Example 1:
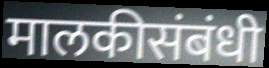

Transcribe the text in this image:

मालकीसंबंधी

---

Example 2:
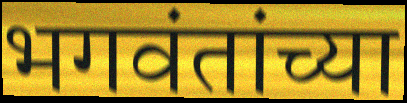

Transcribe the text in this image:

भगवंतांच्या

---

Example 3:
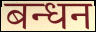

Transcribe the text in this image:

बन्धन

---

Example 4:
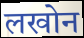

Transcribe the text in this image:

लखोन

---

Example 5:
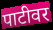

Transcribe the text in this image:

पाटीवर